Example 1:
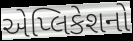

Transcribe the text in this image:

એપ્લિકેશનો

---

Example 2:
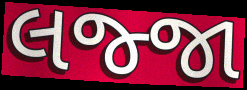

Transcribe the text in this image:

લજ્જા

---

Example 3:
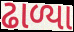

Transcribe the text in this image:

ઢાળ્યા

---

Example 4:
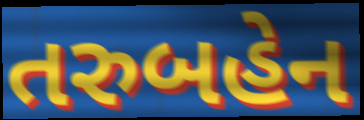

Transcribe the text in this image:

તરુબહેન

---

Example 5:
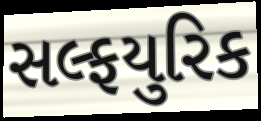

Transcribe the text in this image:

સલ્ફયુરિક